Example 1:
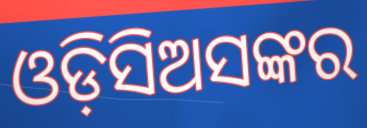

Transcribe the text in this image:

ଓଡ଼ିସିଅସଙ୍କର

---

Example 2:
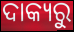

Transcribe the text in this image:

ଦାକ୍ୟରୁ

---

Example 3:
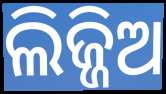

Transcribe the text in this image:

ଲିଜ୍ଜିଅ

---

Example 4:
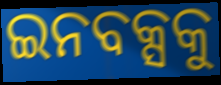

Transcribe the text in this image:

ଇନବକ୍ସକୁ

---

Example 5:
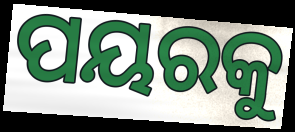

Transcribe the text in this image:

ପୟରକୁ